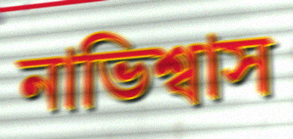
নাভিশ্বাস